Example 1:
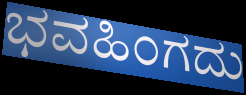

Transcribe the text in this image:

ಭವಹಿಂಗದು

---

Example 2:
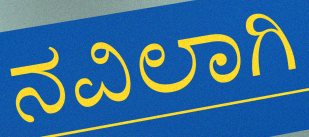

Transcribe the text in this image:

ನವಿಲಾಗಿ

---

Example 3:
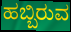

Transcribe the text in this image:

ಹಬ್ಬಿರುವ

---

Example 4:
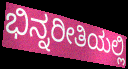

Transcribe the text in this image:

ಭಿನ್ನರೀತಿಯಲ್ಲಿ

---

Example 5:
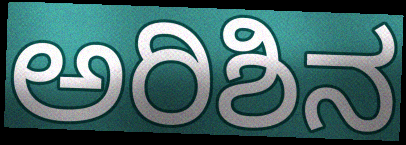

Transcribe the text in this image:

ಅರಿಶಿನ